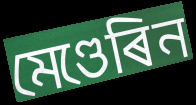
মেণ্ডেৰিন